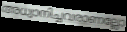
അധ്വാനിച്ചവരാണല്ലോ